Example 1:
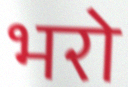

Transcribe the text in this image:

भरो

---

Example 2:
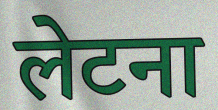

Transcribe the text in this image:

लेटना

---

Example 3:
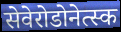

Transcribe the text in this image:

सेवेरोडोनेत्स्क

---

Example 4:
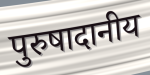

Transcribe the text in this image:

पुरुषादानीय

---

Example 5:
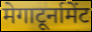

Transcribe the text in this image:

मेगाटूर्नामेंट